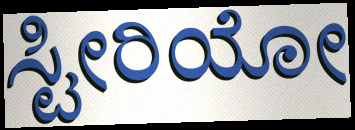
ಸ್ಟೀರಿಯೋ